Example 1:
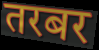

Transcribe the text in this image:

तरबर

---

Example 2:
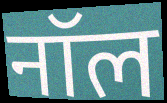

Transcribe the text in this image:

नॉल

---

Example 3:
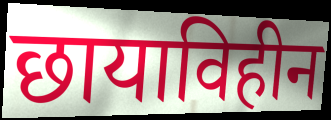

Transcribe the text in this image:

छायाविहीन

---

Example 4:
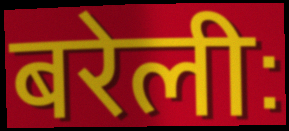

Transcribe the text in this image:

बरेलीः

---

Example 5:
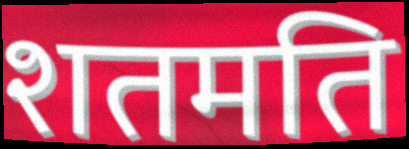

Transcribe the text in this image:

शतमति